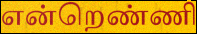
என்றெண்ணி